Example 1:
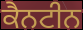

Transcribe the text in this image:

ਕੈਨਟੀਨ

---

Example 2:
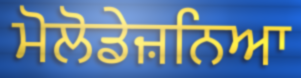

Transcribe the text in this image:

ਮੋਲੋਡੇਜ਼ਨਿਆ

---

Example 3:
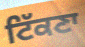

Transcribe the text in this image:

ਟਿੱਕਣਾ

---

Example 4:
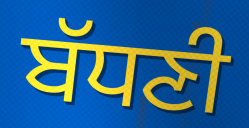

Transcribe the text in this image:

ਬੱਧਣੀ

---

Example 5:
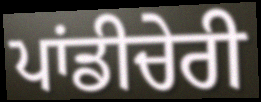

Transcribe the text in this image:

ਪਾਂਡੀਚੇਰੀ